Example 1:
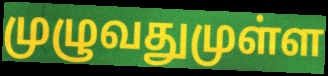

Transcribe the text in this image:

முழுவதுமுள்ள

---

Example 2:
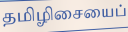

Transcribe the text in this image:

தமிழிசையைப்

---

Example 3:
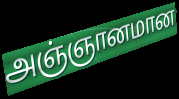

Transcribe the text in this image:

அஞ்ஞானமான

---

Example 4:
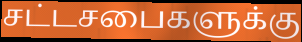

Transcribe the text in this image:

சட்டசபைகளுக்கு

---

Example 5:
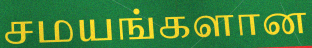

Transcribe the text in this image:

சமயங்களான